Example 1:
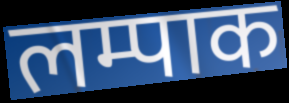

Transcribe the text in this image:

लम्पाक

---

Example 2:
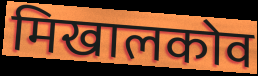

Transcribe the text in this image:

मिखालकोव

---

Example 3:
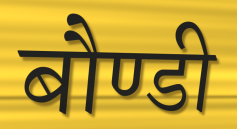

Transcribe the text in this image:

बौण्डी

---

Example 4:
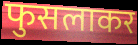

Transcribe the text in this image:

फुसलाकर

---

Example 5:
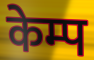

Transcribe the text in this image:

केम्प